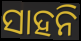
ସାହନି